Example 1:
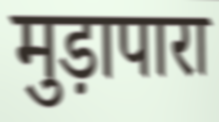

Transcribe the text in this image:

मुड़ापारा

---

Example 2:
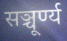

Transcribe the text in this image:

सञ्चूर्ण्य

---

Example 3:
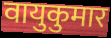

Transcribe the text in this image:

वायुकुमार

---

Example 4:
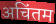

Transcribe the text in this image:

अचिंतम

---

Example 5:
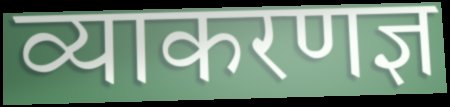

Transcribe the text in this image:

व्याकरणज्ञ